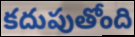
కదుపుతోంది